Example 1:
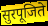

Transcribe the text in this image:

सुरपूजिते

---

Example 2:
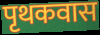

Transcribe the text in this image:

पृथकवास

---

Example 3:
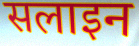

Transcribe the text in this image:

सलाइन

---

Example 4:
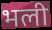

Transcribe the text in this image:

भली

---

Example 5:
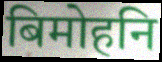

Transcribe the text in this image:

बिमोहनि